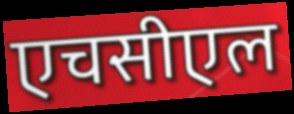
एचसीएल